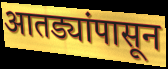
आतड्यांपासून